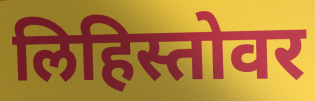
लिहिस्तोवर